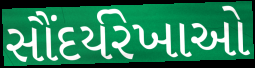
સૌંદર્યરેખાઓ